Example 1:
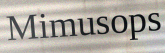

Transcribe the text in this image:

Mimusops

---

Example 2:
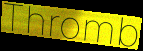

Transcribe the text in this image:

Thromb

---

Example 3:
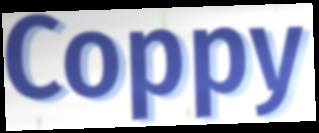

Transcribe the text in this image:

Coppy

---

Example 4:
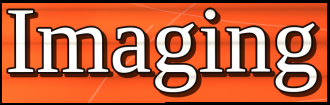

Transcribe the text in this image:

Imaging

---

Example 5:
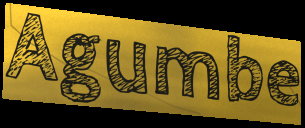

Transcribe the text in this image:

Agumbe